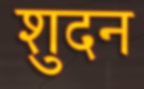
शुदन